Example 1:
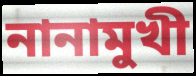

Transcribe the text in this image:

নানামুখী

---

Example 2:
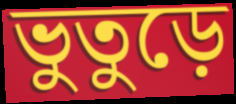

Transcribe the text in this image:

ভুতুড়ে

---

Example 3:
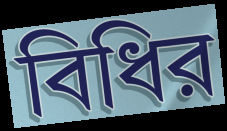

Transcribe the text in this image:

বিধির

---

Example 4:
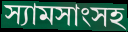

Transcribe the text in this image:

স্যামসাংসহ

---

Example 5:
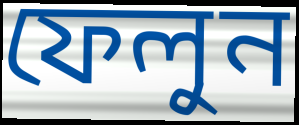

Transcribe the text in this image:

ফেলুন